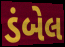
ડંબેલ